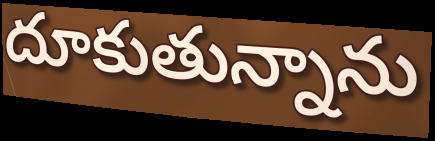
దూకుతున్నాను